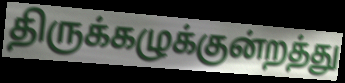
திருக்கழுக்குன்றத்து